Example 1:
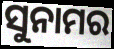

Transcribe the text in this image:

ସୁନାମର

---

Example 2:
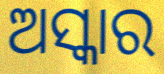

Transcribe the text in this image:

ଅସ୍କାର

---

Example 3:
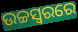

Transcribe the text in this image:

ଉଚ୍ଚସ୍ଵରରେ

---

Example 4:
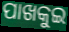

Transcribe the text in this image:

ପାଖକୁଇ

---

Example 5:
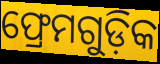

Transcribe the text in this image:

ଫ୍ରେମଗୁଡ଼ିକ